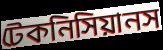
টেকনিসিয়ানস